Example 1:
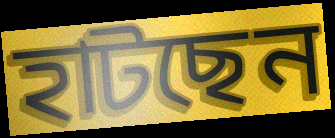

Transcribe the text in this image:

হাটছেন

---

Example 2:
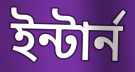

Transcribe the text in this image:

ইন্টার্ন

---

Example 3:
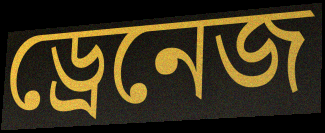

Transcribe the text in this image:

ড্রেনেজ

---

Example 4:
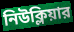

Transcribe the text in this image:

নিউক্লিয়ার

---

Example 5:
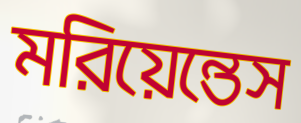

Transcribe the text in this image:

মরিয়েন্তেস